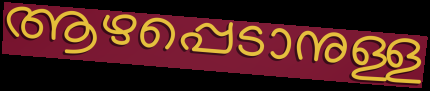
ആഴപ്പെടാനുള്ള